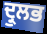
ਦ੍ਰੁਲਭ